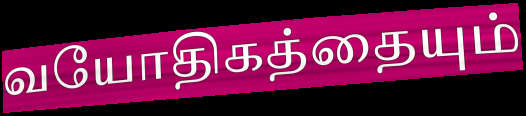
வயோதிகத்தையும்